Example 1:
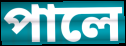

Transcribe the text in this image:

পালে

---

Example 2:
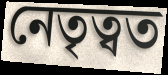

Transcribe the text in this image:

নেতৃত্বত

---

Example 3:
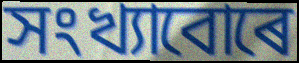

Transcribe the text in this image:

সংখ্যাবোৰে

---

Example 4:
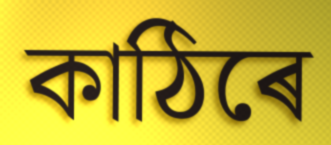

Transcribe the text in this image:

কাঠিৰে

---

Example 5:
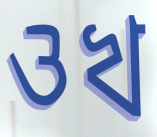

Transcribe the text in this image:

ওখ